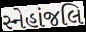
સ્નેહાંજલિ